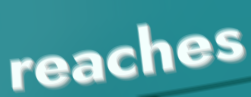
reaches